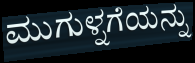
ಮುಗುಳ್ನಗೆಯನ್ನು